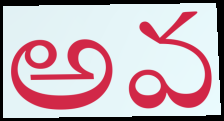
అవ